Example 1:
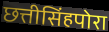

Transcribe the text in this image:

छत्तीसिंहपोरा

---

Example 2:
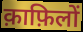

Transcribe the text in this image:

क़ाफ़िलों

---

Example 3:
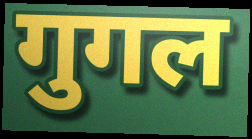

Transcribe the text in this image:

गुगल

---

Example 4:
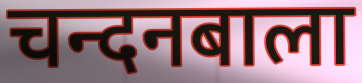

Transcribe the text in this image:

चन्दनबाला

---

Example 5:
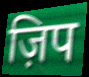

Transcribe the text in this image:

ज़िप